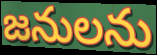
జనులను